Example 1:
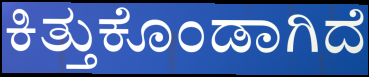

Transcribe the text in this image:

ಕಿತ್ತುಕೊಂಡಾಗಿದೆ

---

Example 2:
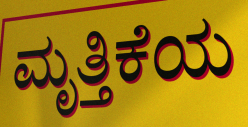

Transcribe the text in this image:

ಮೃತ್ತಿಕೆಯ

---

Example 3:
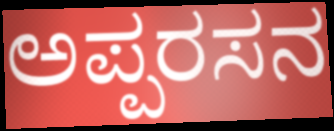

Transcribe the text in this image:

ಅಪ್ಪರಸನ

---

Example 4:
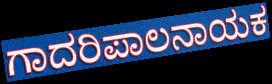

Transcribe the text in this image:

ಗಾದರಿಪಾಲನಾಯಕ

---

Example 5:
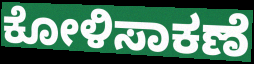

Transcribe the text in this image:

ಕೋಳಿಸಾಕಣೆ